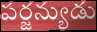
పర్జన్యుడు